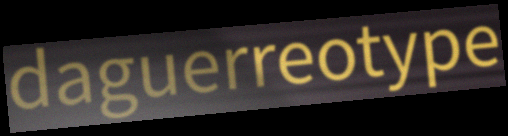
daguerreotype